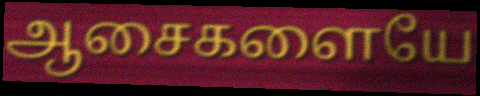
ஆசைகளையே